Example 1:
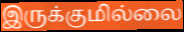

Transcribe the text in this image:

இருக்குமில்லை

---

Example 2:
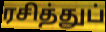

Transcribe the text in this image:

ரசித்துப்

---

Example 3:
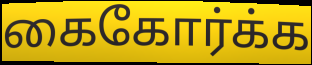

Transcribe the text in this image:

கைகோர்க்க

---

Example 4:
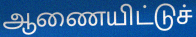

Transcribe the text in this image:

ஆணையிட்டுச்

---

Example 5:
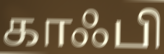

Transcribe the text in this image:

காஃபி